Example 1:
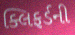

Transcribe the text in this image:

ક્લિફર્ડની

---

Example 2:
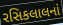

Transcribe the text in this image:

રસિકલાલનાં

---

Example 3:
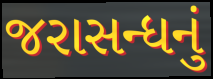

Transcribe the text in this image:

જરાસન્ધનું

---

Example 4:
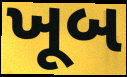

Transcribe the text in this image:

ખૂબ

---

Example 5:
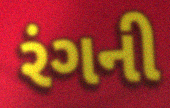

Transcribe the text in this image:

રંગની